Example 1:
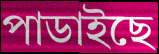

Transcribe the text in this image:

পাডাইছে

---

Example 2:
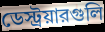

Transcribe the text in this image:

ডেস্ট্রয়ারগুলি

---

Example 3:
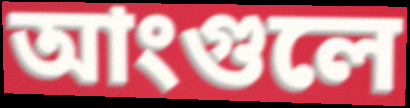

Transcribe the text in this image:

আংগুলে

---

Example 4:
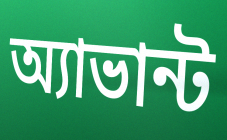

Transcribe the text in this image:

অ্যাভান্ট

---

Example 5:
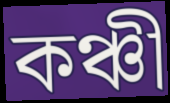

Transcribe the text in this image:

কঞ্চী